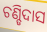
ଚଣ୍ଡିଦାସ